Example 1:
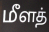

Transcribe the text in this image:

மீளத்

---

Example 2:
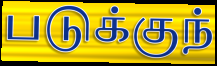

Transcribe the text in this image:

படுக்குந்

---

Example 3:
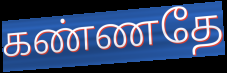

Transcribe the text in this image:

கண்ணதே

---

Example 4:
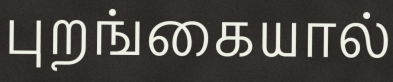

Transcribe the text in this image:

புறங்கையால்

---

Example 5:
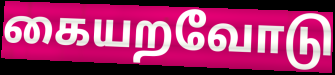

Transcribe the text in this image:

கையறவோடு